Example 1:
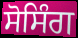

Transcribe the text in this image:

ਸੋਸਿੰਗ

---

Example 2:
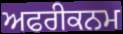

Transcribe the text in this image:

ਅਫਰੀਕਨਮ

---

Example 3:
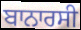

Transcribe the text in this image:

ਬਾਨਾਰਸੀ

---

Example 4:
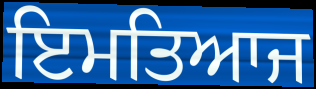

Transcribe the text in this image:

ਇਮਤਿਆਜ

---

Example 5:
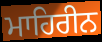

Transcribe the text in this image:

ਮਾਹਿਰੀਨ